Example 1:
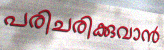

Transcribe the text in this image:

പരിചരിക്കുവാൻ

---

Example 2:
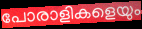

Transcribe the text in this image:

പോരാളികളെയും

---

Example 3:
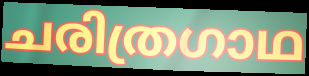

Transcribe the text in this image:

ചരിത്രഗാഥ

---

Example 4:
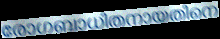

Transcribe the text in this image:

രോഗബാധിതനായതിനെ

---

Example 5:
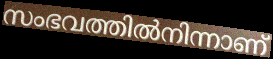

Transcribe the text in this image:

സംഭവത്തിൽനിന്നാണ്